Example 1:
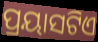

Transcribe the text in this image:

ପ୍ରୟାସଟିଏ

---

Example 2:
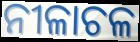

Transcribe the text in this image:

ନୀଳାଚଳ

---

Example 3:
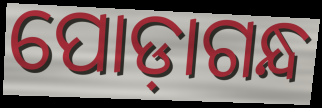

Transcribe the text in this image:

ପୋଡ଼ାଗନ୍ଧ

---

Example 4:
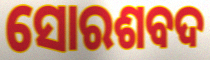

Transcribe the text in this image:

ସୋରଶବଦ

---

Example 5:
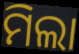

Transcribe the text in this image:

ମିଲା